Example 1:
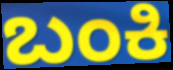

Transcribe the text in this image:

ಬಂಕಿ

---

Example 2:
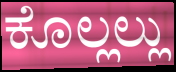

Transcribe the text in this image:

ಕೊಲ್ಲಲ್ಲು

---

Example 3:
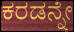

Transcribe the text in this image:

ಕರಡನ್ನೇ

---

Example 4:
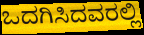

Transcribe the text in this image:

ಒದಗಿಸಿದವರಲ್ಲಿ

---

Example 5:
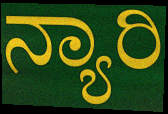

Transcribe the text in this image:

ನ್ಯಾರಿ